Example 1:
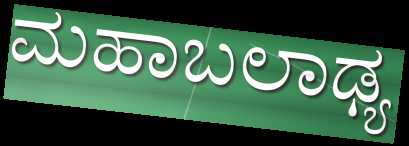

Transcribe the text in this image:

ಮಹಾಬಲಾಢ್ಯ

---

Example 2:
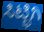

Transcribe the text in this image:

ಸಿಟ್ಟಿಗಿ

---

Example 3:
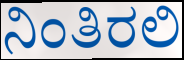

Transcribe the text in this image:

ನಿಂತಿರಲಿ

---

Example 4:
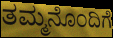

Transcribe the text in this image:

ತಮ್ಮನೊಂದಿಗೆ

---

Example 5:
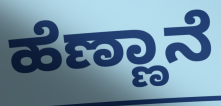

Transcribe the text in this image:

ಹೆಣ್ಣಾನೆ